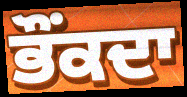
ਭੌਂਕਦਾ